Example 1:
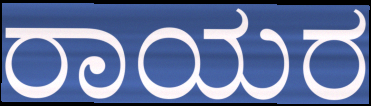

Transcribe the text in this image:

ರಾಯರ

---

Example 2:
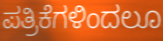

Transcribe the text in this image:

ಪತ್ರಿಕೆಗಳಿಂದಲೂ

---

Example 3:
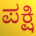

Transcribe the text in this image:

ಪಕ್ಷಿ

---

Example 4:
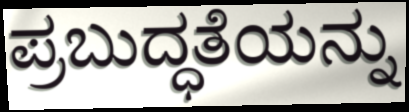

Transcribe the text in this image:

ಪ್ರಬುದ್ಧತೆಯನ್ನು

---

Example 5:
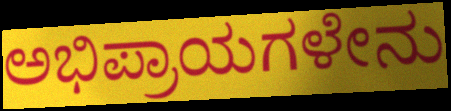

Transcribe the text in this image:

ಅಭಿಪ್ರಾಯಗಳೇನು